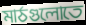
মাঠগুলোতে